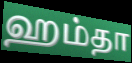
ஹம்தா